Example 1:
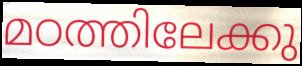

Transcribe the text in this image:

മഠത്തിലേക്കു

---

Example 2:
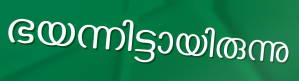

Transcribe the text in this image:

ഭയന്നിട്ടായിരുന്നു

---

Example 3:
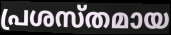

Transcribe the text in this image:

പ്രശസ്തമായ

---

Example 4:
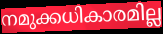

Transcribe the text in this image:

നമുക്കധികാരമില്ല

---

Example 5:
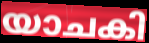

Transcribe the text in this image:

യാചകി